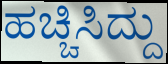
ಹಚ್ಚಿಸಿದ್ದು